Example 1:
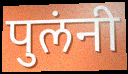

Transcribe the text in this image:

पुलंनी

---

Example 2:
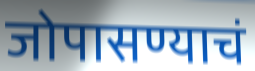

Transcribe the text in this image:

जोपासण्याचं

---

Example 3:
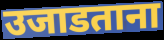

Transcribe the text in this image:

उजाडताना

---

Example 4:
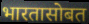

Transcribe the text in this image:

भारतासोबत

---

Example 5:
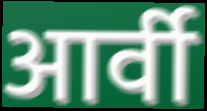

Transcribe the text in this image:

आर्वी